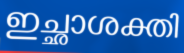
ഇച്ഛാശക്തി